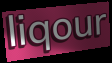
liqour